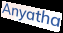
Anyatha